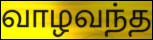
வாழவந்த